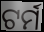
ଟର୍ମ